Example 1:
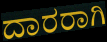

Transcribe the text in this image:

ದಾರರಾಗಿ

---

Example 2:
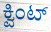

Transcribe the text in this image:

ಕ್ವಿಂಟ್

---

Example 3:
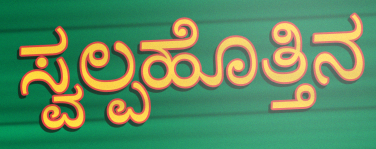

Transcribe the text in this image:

ಸ್ವಲ್ಪಹೊತ್ತಿನ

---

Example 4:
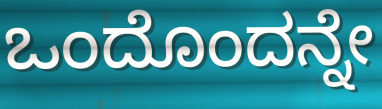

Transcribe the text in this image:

ಒಂದೊಂದನ್ನೇ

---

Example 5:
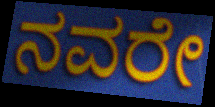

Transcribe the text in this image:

ನವರೇ